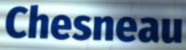
Chesneau